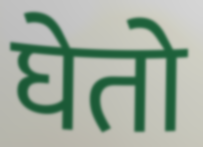
घेतो